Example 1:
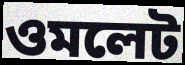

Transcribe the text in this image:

ওমলেট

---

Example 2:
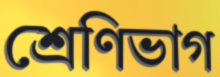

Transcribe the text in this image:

শ্রেণিভাগ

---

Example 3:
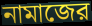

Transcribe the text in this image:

নামাজের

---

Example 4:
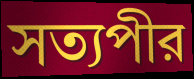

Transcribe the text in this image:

সত্যপীর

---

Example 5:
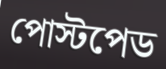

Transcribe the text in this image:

পোস্টপেড